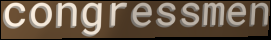
congressmen